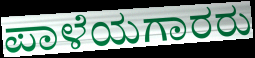
ಪಾಳೆಯಗಾರರು